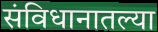
संविधानातल्या